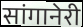
सांगानेरी